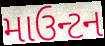
માઉન્ટન